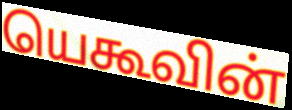
யெகூவின்